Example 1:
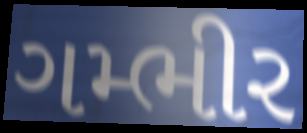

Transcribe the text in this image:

ગમ્ભીર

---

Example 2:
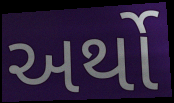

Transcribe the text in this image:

અર્થો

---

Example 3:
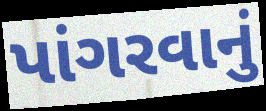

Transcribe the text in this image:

પાંગરવાનું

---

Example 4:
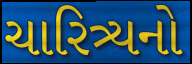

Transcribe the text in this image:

ચારિત્ર્યનો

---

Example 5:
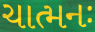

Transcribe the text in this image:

ચાત્મનઃ